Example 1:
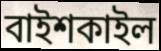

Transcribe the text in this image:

বাইশকাইল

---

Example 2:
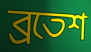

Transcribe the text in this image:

ব্রতেশ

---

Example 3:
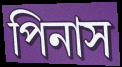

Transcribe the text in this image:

পিনাস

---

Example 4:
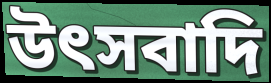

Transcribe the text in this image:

উৎসবাদি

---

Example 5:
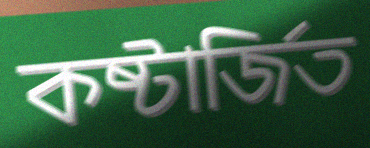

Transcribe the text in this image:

কষ্টার্জিত